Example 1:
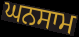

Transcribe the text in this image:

ਘਨਸਾਮ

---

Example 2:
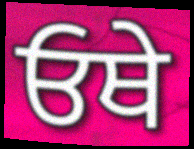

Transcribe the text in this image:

ਓਥੇ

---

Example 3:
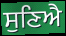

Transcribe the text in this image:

ਸੁਣਿਐ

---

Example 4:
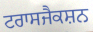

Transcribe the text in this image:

ਟਰਾਸਜੈਕਸ਼ਨ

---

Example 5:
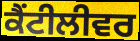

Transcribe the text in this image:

ਕੈਂਟੀਲੀਵਰ